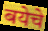
बयेचे